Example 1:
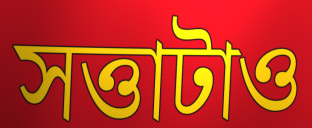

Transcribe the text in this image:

সত্তাটাও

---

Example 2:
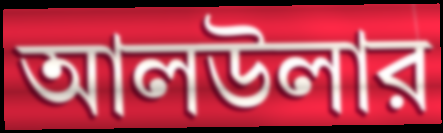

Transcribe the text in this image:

আলউলার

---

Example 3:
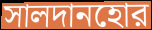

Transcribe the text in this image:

সালদানহোর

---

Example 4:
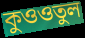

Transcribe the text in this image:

কুওওতুল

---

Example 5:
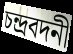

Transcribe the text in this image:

চন্দ্রবদনী